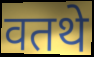
वतथे